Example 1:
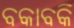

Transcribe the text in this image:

ବକାବକି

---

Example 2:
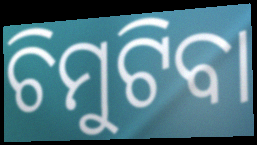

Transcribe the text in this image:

ଚିମୁଟିବା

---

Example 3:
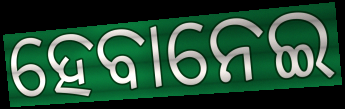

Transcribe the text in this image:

ହେବାନେଇ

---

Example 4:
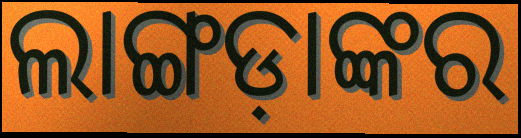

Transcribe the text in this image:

ଲାଙ୍ଗଡ଼ାଙ୍କର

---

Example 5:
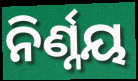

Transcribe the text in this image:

ନିର୍ଣ୍ନୟ